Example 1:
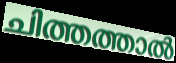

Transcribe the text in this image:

ചിത്തത്താൽ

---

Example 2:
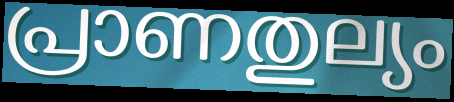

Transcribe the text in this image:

പ്രാണതുല്യം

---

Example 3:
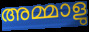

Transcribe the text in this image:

അമ്മാളു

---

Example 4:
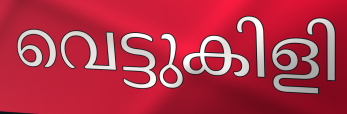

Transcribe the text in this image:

വെട്ടുകിളി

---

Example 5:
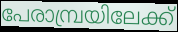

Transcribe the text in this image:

പേരാമ്പ്രയിലേക്ക്